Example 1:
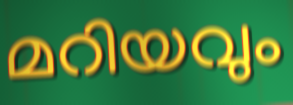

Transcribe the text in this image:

മറിയവും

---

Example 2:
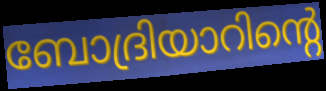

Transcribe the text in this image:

ബോദ്രിയാറിന്റെ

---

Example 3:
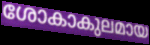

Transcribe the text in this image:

ശോകാകുലമായ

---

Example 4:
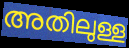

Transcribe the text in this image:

അതിലുള്ള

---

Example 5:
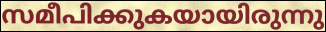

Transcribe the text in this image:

സമീപിക്കുകയായിരുന്നു